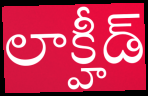
లాక్హీడ్